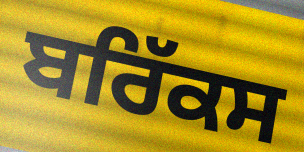
ਬਰਿੱਕਸ